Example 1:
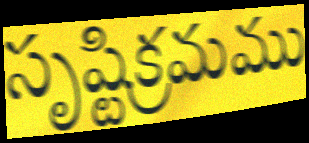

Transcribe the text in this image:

సృష్టిక్రమము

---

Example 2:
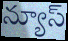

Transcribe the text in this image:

న్యూస్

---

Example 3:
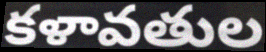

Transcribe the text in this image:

కళావతుల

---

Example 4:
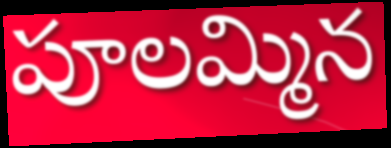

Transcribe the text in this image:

పూలమ్మిన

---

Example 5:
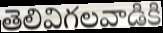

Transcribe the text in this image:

తెలివిగలవాడికి